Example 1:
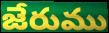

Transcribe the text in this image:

జేరుము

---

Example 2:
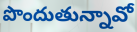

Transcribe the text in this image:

పొందుతున్నావో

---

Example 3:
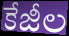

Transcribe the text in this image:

కేజీల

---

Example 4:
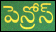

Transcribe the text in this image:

పెన్రోస్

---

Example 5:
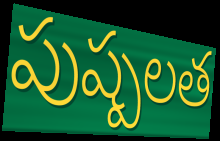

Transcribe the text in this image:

పుష్పలత